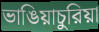
ভাঙিয়াচুরিয়া